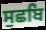
ਸੁਛਬਿ